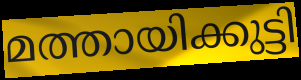
മത്തായിക്കുട്ടി